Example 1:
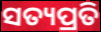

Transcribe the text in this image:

ସତ୍ୟପ୍ରତି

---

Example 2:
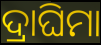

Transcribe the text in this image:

ଦ୍ରାଘିମା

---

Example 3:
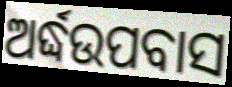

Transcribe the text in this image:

ଅର୍ଦ୍ଧଉପବାସ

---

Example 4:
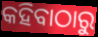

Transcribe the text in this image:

କହିବାଠାରୁ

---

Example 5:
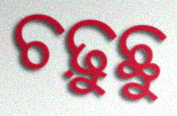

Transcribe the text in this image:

ଚଢ଼ୁଛୁ